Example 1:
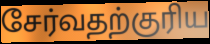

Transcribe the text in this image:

சேர்வதற்குரிய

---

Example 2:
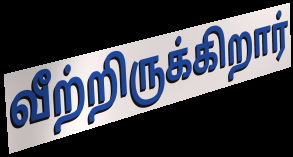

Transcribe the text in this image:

வீற்றிருக்கிறார்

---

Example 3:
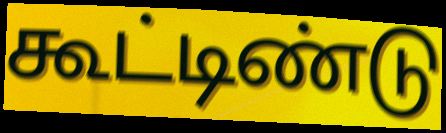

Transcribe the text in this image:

கூட்டிண்டு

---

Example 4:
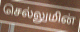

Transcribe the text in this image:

செல்லுமின்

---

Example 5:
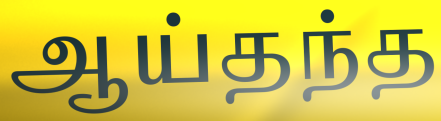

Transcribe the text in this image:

ஆய்தந்த